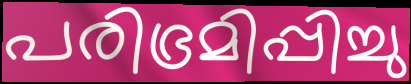
പരിഭ്രമിപ്പിച്ചു